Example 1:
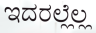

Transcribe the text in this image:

ಇದರಲ್ಲೆಲ್ಲ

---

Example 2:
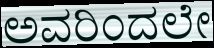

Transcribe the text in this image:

ಅವರಿಂದಲೇ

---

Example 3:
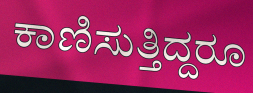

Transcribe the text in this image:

ಕಾಣಿಸುತ್ತಿದ್ದರೂ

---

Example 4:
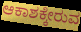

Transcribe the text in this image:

ಆಕಾಶಕ್ಕೇರುವ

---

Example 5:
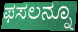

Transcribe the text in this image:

ಫಸಲನ್ನೂ